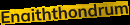
Enaiththondrum